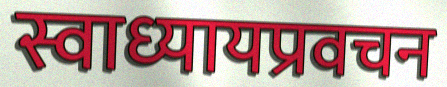
स्वाध्यायप्रवचन